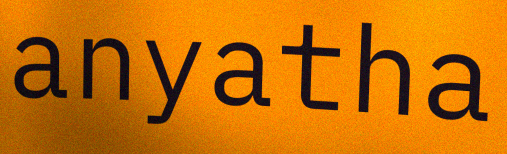
anyatha